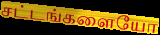
சட்டங்களையோ